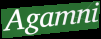
Agamni